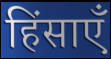
हिंसाएँ